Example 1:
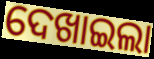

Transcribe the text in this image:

ଦେଖାଇଲା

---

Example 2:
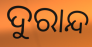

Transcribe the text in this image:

ଦୁରାନ୍ଦ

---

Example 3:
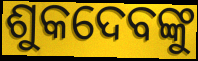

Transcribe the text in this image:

ଶୁକଦେବଙ୍କୁ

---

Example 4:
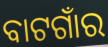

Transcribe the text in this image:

ବାଟଗାଁର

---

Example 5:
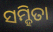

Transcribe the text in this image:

ସମ୍ହିତା